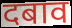
दबाव